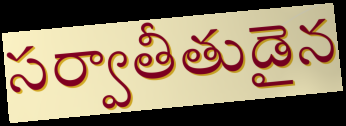
సర్వాతీతుడైన